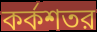
কর্কশতর